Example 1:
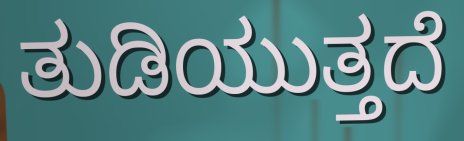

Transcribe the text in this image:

ತುಡಿಯುತ್ತದೆ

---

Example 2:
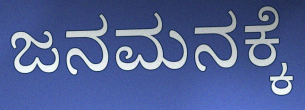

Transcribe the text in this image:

ಜನಮನಕ್ಕೆ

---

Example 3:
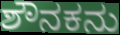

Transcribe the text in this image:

ಶೌನಕನು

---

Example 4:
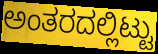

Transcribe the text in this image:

ಅಂತರದಲ್ಲಿಟ್ಟು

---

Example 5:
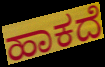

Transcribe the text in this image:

ಹಾಕದೆ